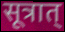
सूत्रात्